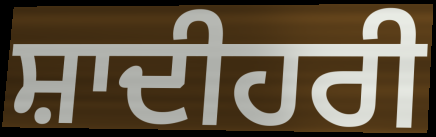
ਸ਼ਾਦੀਹਰੀ